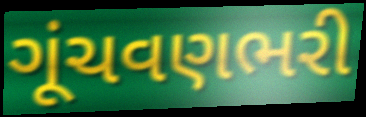
ગૂંચવણભરી